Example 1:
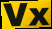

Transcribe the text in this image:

Vx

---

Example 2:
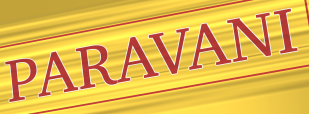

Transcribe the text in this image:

PARAVANI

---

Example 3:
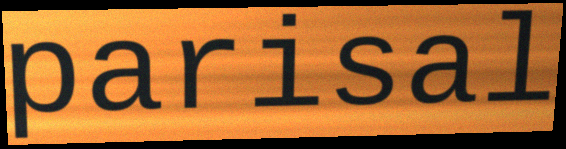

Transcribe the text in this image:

parisal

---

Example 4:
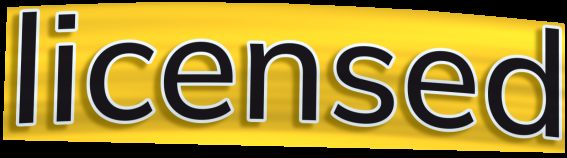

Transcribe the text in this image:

licensed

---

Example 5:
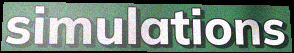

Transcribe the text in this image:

simulations